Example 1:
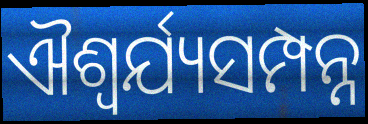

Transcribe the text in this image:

ଐଶ୍ୱର୍ଯ୍ୟସମ୍ପନ୍ନ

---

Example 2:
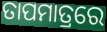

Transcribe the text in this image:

ତାପମାତ୍ରରେ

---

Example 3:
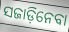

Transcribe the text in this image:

ସଜାଡ଼ିନେବା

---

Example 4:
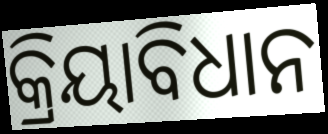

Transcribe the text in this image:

କ୍ରିୟାବିଧାନ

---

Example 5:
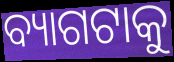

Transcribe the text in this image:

ବ୍ୟାଗଟାକୁ